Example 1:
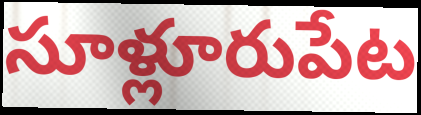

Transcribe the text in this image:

సూళ్లూరుపేట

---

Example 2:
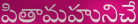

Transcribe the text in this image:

పితామహునిచే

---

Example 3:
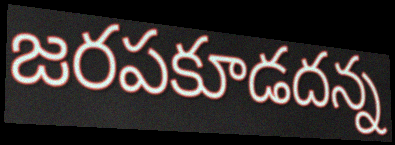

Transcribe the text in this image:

జరపకూడదన్న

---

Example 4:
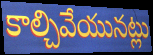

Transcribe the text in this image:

కాల్చివేయునట్లు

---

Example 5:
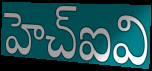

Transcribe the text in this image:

హెచ్ఐవి